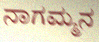
ನಾಗಮ್ಮನ